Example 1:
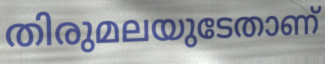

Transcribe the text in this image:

തിരുമലയുടേതാണ്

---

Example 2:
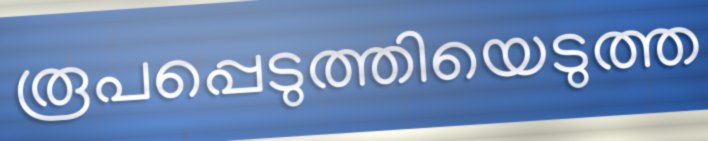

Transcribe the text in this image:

രൂപപ്പെടുത്തിയെടുത്ത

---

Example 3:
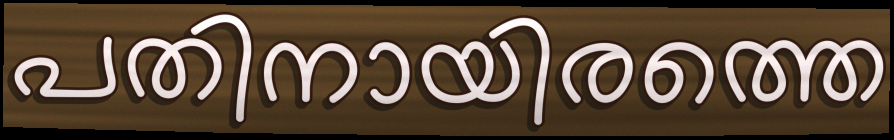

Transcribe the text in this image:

പതിനായിരത്തെ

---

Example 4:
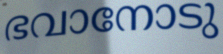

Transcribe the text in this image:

ഭവാനോടു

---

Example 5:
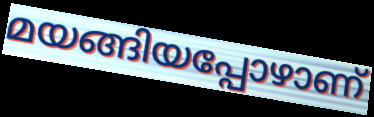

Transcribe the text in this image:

മയങ്ങിയപ്പോഴാണ്